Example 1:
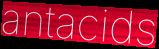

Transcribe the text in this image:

antacids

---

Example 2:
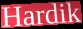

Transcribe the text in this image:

Hardik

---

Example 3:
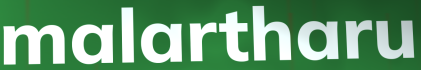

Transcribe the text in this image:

malartharu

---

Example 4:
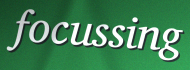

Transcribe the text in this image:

focussing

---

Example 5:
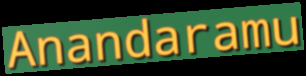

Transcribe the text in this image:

Anandaramu